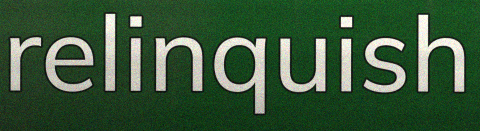
relinquish